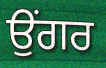
ਉਂਗਰ